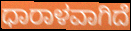
ಧಾರಾಳವಾಗಿದೆ